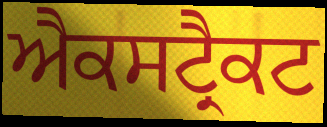
ਐਕਸਟ੍ਰੈਕਟ